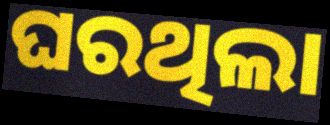
ଘରଥିଲା